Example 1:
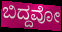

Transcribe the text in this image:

ಬಿದ್ದವೋ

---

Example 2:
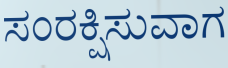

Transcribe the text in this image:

ಸಂರಕ್ಷಿಸುವಾಗ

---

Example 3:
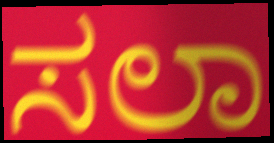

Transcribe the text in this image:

ಸಲಾ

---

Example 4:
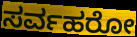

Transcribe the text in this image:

ಸರ್ವಹರೋ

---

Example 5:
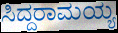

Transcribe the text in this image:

ಸಿದ್ದರಾಮಯ್ಯ